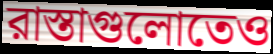
রাস্তাগুলোতেও